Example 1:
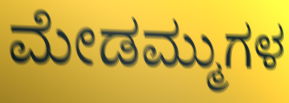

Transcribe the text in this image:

ಮೇಡಮ್ಮುಗಳ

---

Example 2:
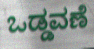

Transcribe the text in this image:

ಒಡ್ಡವಣೆ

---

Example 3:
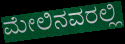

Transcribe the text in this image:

ಮೇಲಿನವರಲ್ಲಿ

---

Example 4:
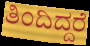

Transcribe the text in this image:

ತಿಂದಿದ್ದರೆ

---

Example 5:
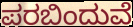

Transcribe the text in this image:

ಪರಬಿಂದುವೆ